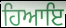
ਹਿਆਇ